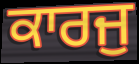
ਕਾਰਜੁ